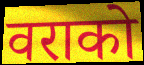
वराको